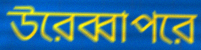
উরেব্বাপরে